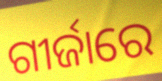
ଗୀର୍ଜାରେ